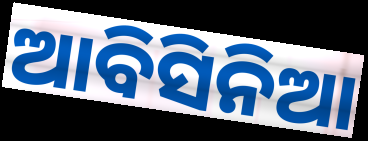
ଆବିସିନିଆ